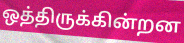
ஒத்திருக்கின்றன